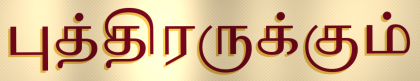
புத்திரருக்கும்